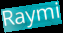
Raymi